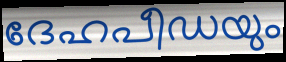
ദേഹപീഡയും